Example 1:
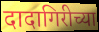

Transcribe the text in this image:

दादागिरीच्या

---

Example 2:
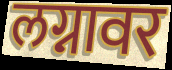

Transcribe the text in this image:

लग्नावर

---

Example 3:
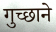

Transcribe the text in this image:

गुच्छाने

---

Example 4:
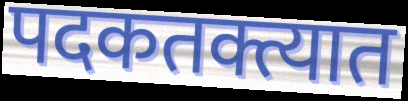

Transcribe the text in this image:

पदकतक्त्यात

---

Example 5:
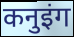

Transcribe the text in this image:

कनुइंग